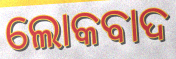
ଲୋକବାଦ